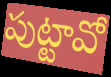
పుట్టావో